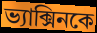
ভ্যাক্সিনকে